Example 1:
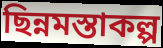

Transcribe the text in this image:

ছিন্নমস্তাকল্প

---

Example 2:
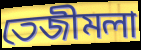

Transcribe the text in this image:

তেজীমলা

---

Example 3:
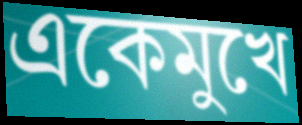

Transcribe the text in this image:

একেমুখে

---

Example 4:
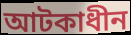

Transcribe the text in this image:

আটকাধীন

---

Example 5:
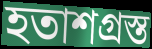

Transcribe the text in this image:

হতাশগ্ৰস্ত